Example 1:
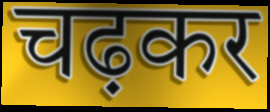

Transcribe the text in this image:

चढ़कर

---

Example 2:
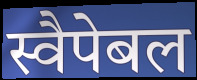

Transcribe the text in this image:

स्वैपेबल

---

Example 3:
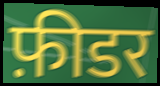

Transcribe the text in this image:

फ़ीडर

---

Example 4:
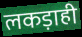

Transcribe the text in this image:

लकड़ाही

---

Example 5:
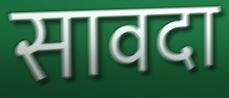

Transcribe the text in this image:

सावदा